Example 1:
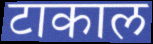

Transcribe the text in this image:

टाकाल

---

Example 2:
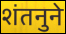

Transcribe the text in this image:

शंतनुने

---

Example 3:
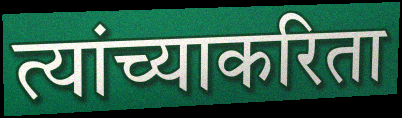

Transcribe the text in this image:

त्यांच्याकरिता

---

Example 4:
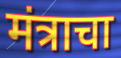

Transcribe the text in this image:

मंत्राचा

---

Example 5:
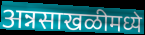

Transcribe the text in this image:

अन्नसाखळीमध्ये